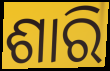
ଶାରି